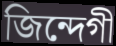
জিন্দেগী